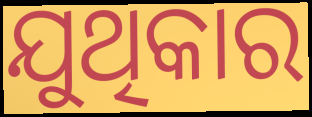
ଯୁଥିକାର